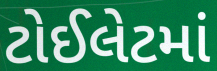
ટોઈલેટમાં